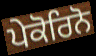
ਪੇਕੋਰਿਨੋ